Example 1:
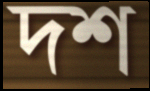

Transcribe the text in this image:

দশ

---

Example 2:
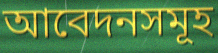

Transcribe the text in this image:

আবেদনসমূহ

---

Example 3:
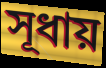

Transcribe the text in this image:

সূধায়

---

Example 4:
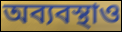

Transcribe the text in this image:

অব্যবস্থাও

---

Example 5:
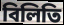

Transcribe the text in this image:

বিলিতি